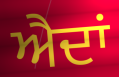
ਐਦਾਂ